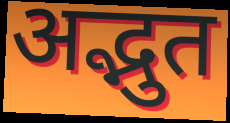
अद्भुत